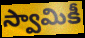
స్వామికీ